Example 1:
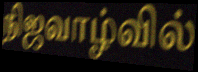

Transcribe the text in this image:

நிஜவாழ்வில்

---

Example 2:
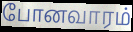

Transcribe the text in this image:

போனவாரம்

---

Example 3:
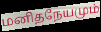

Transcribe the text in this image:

மனிதநேயமும்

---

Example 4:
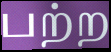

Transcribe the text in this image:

பற்ற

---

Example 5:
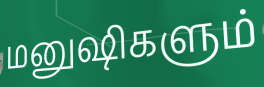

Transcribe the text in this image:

மனுஷிகளும்